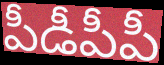
పీడీపీపీ